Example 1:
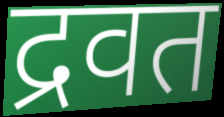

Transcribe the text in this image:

द्रवत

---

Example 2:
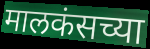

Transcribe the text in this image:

मालकंसच्या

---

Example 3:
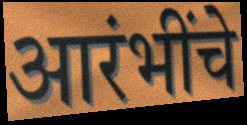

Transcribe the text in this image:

आरंभींचे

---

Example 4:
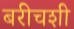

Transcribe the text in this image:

बरीचशी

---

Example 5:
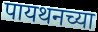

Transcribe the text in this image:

पायथनच्या